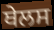
ਥੇਲਸ